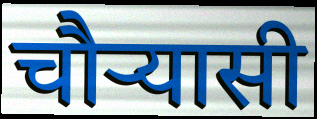
चौर्‍यासी